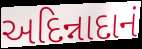
અદિન્નાદાનં